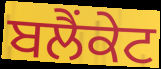
ਬਲੈਂਕੇਟ